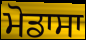
ਮੋਡਾਸਾ